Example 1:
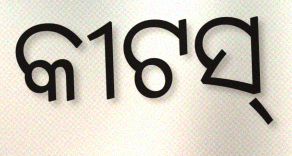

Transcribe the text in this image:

କୀଟସ୍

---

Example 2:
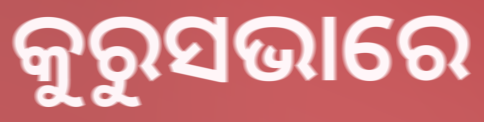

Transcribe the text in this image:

କୁରୁସଭାରେ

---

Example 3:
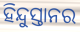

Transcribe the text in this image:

ହିନ୍ଦୁସ୍ତାନର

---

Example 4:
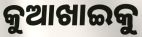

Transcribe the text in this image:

କୁଆଖାଇକୁ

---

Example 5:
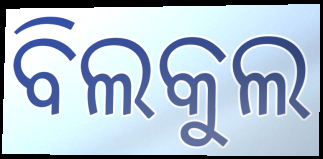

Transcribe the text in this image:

ବିଲକୁଲ